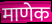
माणेक